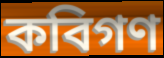
কবিগণ